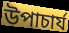
উপাচাৰ্য